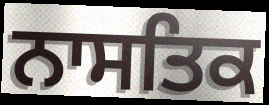
ਨਾਸਤਿਕ